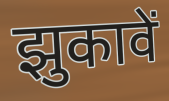
झुकावें